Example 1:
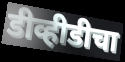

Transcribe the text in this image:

डीव्हीडीचा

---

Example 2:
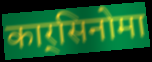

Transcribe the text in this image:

कार्सिनोमा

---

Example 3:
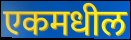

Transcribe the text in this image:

एकमधील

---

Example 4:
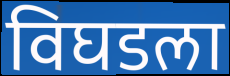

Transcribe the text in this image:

विघडला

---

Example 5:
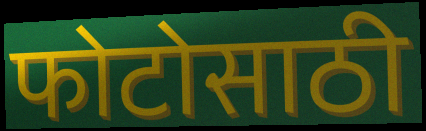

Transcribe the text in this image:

फोटोसाठी